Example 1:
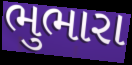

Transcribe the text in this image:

ભુભારા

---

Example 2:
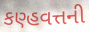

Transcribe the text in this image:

કણ્હવત્તની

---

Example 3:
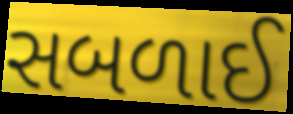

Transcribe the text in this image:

સબળાઈ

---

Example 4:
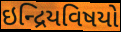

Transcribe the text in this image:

ઇન્દ્રિયવિષયો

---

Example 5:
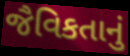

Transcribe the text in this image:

જૈવિકતાનું